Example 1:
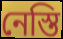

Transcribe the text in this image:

নেস্তি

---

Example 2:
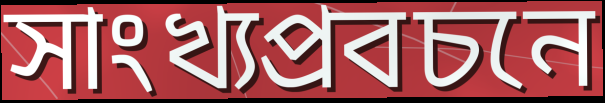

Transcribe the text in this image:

সাংখ্যপ্রবচনে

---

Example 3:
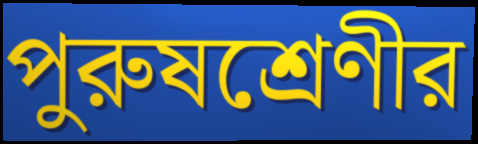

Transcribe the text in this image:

পুরুষশ্রেণীর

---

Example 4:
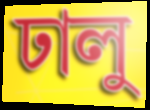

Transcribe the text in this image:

ঢালু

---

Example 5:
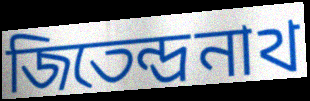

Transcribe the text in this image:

জিতেন্দ্রনাথ